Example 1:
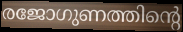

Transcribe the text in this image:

രജോഗുണത്തിന്റെ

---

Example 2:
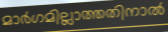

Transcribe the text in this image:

മാർഗമില്ലാത്തതിനാൽ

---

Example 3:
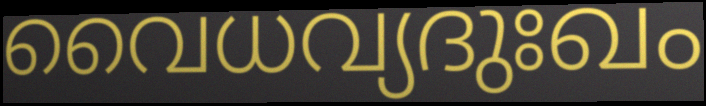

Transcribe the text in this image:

വൈധവ്യദുഃഖം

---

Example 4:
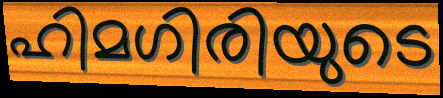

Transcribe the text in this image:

ഹിമഗിരിയുടെ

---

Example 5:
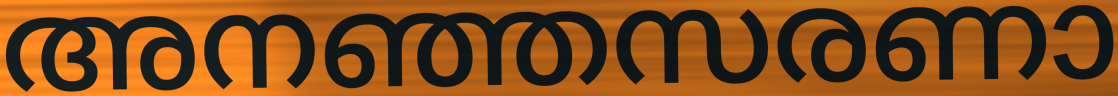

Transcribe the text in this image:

അനഞ്ഞസരണാ